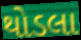
થોડલા